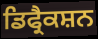
ਡਿਫ੍ਰੈਕਸ਼ਨ